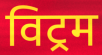
विट्रम